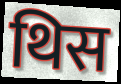
थिस